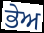
ਭੇਅ